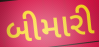
બીમારી